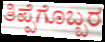
ತಿಪ್ಪೆಗೊಬ್ಬರ